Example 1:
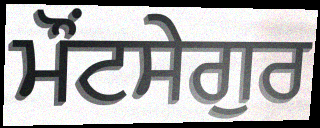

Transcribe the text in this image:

ਮੌਂਟਸੇਗੁਰ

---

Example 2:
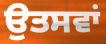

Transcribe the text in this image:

ਉਤਸਵਾਂ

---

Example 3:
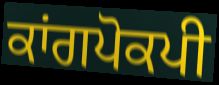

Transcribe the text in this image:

ਕਾਂਗਪੋਕਪੀ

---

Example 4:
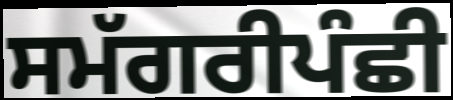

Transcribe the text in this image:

ਸਮੱਗਰੀਪੰਛੀ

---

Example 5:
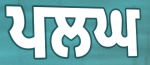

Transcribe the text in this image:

ਪਲਘ